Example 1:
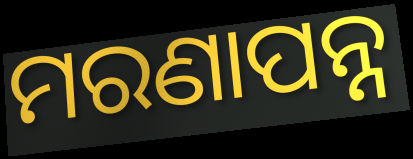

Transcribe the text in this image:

ମରଣାପନ୍ନ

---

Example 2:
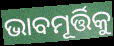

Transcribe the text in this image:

ଭାବମୂର୍ତ୍ତିକୁ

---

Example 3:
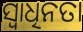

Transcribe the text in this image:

ସ୍ଵାଧିନତା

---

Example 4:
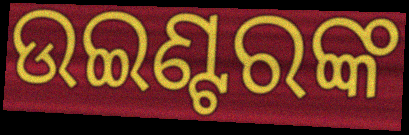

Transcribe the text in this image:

ଉଇଣ୍ଟରଙ୍କ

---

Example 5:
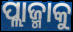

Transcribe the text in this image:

ପ୍ଲାଜ୍ମାକୁ